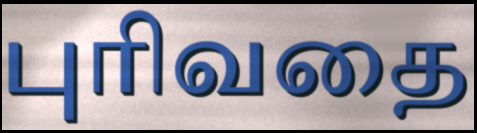
புரிவதை